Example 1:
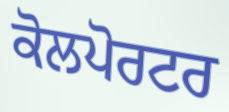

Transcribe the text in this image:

ਕੋਲਪੋਰਟਰ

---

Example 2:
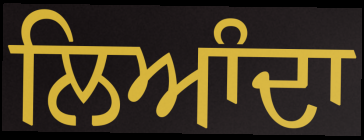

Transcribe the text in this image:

ਲਿਆੰਦਾ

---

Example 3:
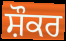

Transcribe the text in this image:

ਸ਼ੌਕਰ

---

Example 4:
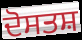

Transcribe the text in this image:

ਦੋਸਤਸ਼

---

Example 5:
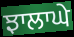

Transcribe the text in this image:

ਝਾਲਾਘੇ